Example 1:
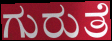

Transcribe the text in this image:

ಗುರುತೆ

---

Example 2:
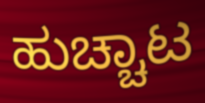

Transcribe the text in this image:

ಹುಚ್ಚಾಟ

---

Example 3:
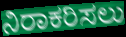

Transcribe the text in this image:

ನಿರಾಕರಿಸಲು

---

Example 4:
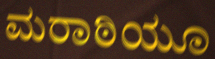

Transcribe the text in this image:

ಮರಾಠಿಯೂ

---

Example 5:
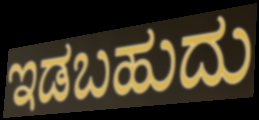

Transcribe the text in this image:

ಇಡಬಹುದು